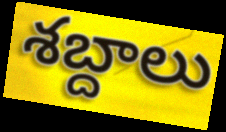
శబ్దాలు